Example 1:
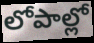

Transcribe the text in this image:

లోపాల్లో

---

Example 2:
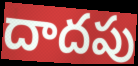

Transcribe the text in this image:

దాదపు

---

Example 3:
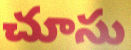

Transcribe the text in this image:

చూసు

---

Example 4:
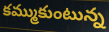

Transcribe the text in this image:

కమ్ముకుంటున్న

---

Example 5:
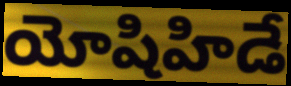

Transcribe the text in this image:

యోషిహిడే